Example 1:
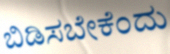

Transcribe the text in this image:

ಬಿಡಿಸಬೇಕೆಂದು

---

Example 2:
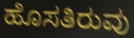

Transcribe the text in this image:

ಹೊಸತಿರುವು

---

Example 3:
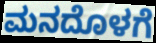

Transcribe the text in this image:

ಮನದೊಳಗೆ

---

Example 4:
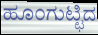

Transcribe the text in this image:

ಹೂಂಗುಟ್ಟಿದ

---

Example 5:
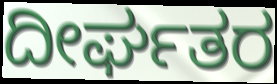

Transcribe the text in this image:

ದೀರ್ಘತರ